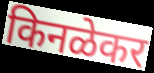
किनळेकर